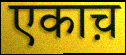
एकाच़